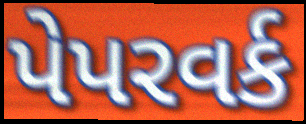
પેપરવર્ક